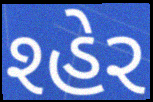
શ્હેર